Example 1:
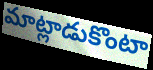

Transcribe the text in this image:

మాట్లాడుకొంటా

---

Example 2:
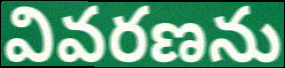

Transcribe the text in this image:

వివరణను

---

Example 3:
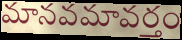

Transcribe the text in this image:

మానవమావర్తం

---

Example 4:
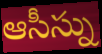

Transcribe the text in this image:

ఆసీస్ను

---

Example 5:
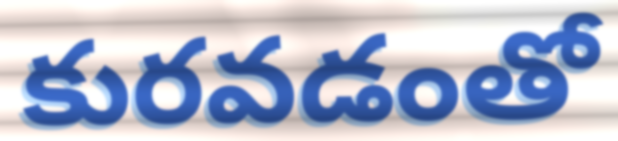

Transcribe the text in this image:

కురవడంతో